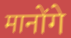
मानोंगे